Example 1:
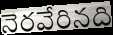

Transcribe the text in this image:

నెరవేరినది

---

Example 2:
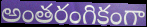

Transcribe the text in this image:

అంతరంగికంగా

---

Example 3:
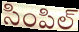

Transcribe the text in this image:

సింపిల్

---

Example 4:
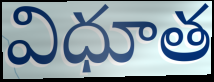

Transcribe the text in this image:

విధూత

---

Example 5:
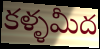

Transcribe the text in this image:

కళ్ళమీద